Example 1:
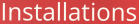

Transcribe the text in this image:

Installations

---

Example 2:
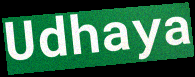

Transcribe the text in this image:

Udhaya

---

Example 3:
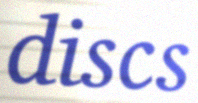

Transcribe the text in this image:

discs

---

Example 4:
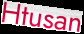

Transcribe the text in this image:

Htusan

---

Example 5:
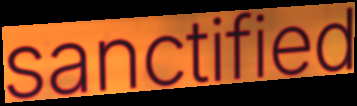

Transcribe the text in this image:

sanctified